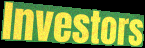
Investors